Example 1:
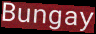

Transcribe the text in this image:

Bungay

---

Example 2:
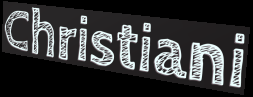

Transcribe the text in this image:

Christiani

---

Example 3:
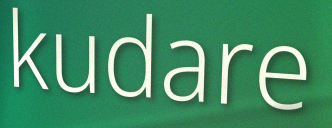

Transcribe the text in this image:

kudare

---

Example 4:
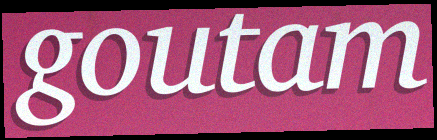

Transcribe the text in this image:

goutam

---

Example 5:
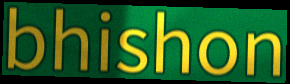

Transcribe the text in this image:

bhishon